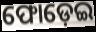
ଫୋଡ଼େଇ